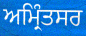
ਅਮ੍ਰਿੰਤਸਰ